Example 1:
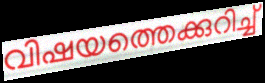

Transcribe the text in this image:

വിഷയത്തെക്കുറിച്ച്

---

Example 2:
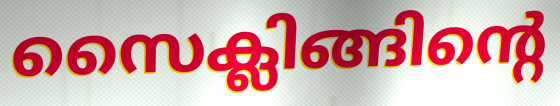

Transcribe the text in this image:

സൈക്ലിങ്ങിന്റെ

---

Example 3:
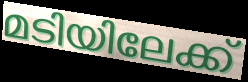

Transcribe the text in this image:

മടിയിലേക്ക്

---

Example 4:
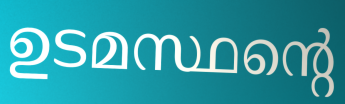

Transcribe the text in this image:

ഉടമസ്ഥന്റെ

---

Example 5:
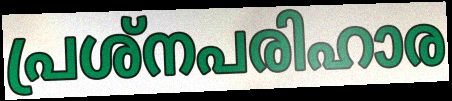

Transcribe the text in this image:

പ്രശ്നപരിഹാര